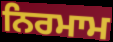
ਨਿਰਮਾਮ